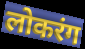
लोकरंग